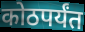
कोठपर्यंत